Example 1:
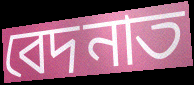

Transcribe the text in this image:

বেদনাত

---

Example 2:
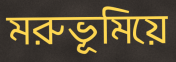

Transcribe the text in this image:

মৰুভূমিয়ে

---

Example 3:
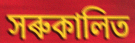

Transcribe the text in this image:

সৰুকালিত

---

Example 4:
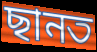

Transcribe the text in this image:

ছানত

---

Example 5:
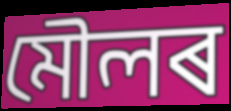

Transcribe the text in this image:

মৌলৰ